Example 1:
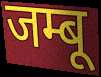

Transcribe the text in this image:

जम्बू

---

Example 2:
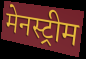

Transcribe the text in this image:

मेनस्ट्रीम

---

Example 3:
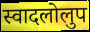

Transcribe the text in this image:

स्वादलोलुप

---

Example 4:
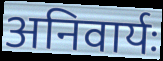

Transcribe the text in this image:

अनिवार्यः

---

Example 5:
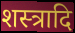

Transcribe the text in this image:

शस्त्रादि